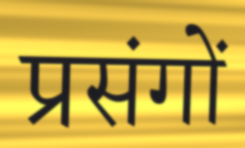
प्रसंगों